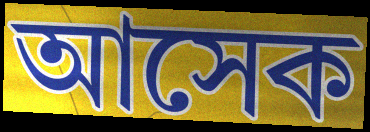
আসেক